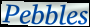
Pebbles